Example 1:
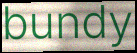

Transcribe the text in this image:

bundy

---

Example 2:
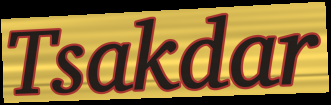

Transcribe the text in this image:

Tsakdar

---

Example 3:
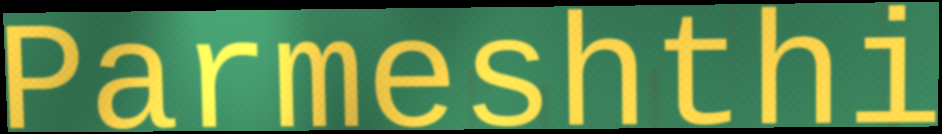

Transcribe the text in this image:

Parmeshthi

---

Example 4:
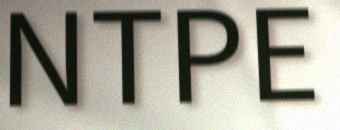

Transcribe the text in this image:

NTPE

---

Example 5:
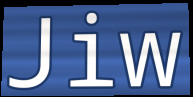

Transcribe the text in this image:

Jiw